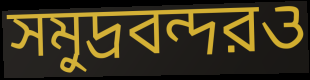
সমুদ্রবন্দরও